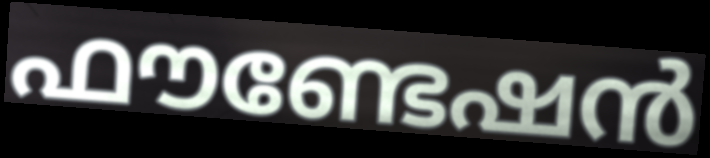
ഫൗണ്ടേഷൻ